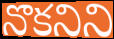
నొకనిని